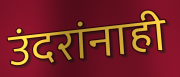
उंदरांनाही